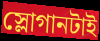
স্লোগানটাই